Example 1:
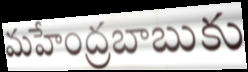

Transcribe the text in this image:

మహేంద్రబాబుకు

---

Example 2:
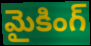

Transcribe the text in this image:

మైకింగ్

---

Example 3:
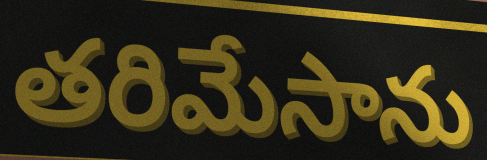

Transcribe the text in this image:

తరిమేసాను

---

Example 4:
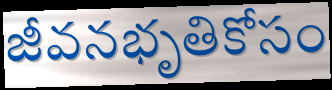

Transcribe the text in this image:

జీవనభృతికోసం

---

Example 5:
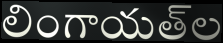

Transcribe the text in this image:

లింగాయత్‌ల